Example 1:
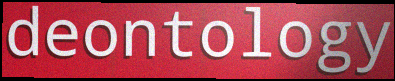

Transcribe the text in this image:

deontology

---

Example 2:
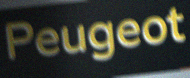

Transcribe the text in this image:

Peugeot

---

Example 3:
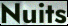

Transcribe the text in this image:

Nuits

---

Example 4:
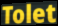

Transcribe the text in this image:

Tolet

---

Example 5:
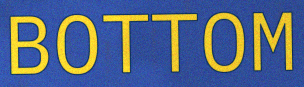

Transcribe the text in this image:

BOTTOM